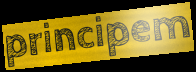
principem